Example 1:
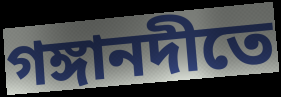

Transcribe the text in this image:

গঙ্গানদীতে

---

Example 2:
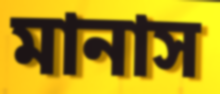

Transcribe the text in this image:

মানাস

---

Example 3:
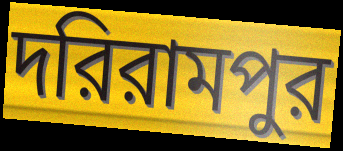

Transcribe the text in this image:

দরিরামপুর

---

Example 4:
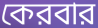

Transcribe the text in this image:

কেরবার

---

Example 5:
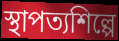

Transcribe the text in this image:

স্থাপত্যশিল্পে